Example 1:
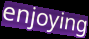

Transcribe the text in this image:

enjoying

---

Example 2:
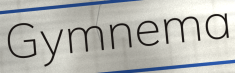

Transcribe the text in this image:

Gymnema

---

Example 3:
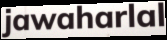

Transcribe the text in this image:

jawaharlal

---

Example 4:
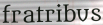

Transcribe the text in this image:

fratribus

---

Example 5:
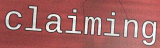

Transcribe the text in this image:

claiming